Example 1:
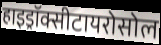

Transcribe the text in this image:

हाइड्रॉक्सीटायरोसोल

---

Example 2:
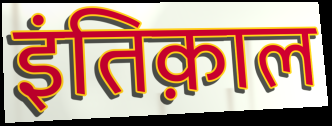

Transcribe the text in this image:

इंतिक़ाल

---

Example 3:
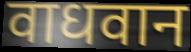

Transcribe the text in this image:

वाधवान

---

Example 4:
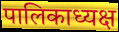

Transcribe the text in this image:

पालिकाध्यक्ष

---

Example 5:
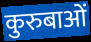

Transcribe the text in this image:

कुरुबाओं